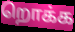
றொக்க